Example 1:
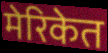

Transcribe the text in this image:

मेरिकेत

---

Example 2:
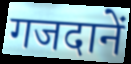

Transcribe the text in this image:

गजदानें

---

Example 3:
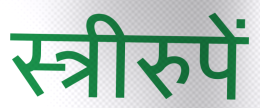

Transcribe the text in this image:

स्त्रीरुपें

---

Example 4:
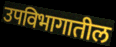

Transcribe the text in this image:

उपविभागातील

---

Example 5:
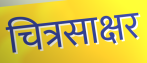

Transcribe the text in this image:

चित्रसाक्षर